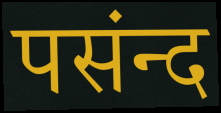
पसंन्द